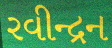
રવીન્દ્રન